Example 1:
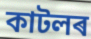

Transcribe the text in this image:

কাটলৰ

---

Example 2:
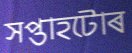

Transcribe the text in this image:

সপ্তাহটোৰ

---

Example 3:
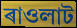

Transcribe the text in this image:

ৰাওলাট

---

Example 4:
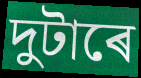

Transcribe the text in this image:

দুটাৰে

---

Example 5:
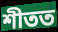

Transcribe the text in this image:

শীতত